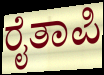
ರೈತಾಪಿ